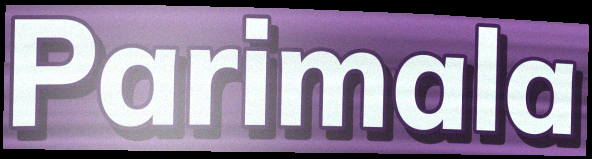
Parimala